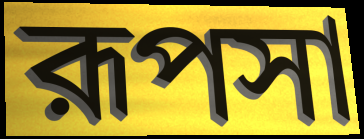
রূপসা